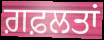
ਗ਼ਫ਼ਲਤਾਂ